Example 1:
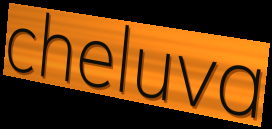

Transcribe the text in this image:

cheluva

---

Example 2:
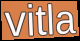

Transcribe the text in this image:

vitla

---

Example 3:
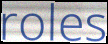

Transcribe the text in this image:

roles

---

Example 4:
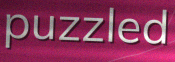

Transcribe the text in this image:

puzzled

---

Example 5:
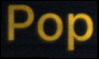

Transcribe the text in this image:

Pop